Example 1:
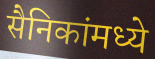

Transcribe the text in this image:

सैनिकांमध्ये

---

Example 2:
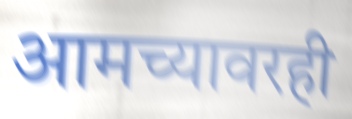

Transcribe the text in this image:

आमच्यावरही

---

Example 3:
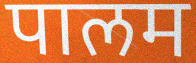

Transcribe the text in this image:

पालम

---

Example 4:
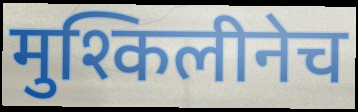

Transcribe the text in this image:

मुश्किलीनेच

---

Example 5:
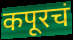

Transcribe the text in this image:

कपूरचं